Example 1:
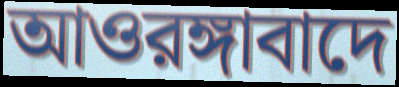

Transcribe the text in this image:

আওরঙ্গাবাদে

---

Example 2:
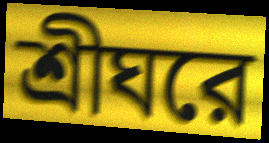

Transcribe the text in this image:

শ্রীঘরে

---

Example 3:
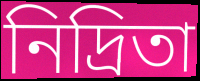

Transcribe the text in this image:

নিদ্রিতা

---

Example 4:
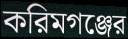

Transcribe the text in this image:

করিমগঞ্জের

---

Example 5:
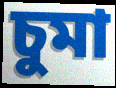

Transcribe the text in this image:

চুমা